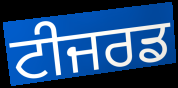
ਟੀਜਰਡ